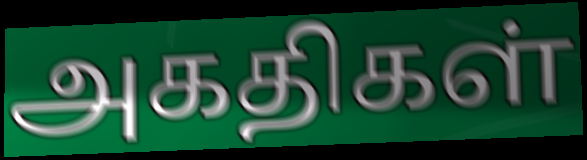
அகதிகள்